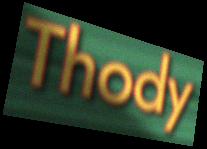
Thody